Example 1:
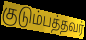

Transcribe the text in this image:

குடும்பத்தவர்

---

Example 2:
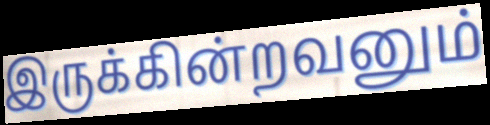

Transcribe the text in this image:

இருக்கின்றவனும்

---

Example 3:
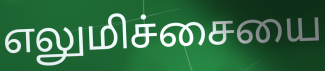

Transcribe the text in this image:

எலுமிச்சையை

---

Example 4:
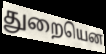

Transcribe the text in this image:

துறையென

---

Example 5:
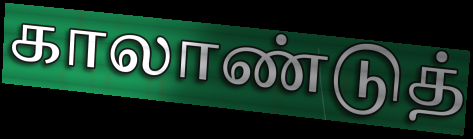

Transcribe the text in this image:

காலாண்டுத்